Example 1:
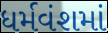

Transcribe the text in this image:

ધર્મવંશમાં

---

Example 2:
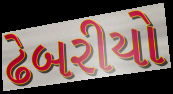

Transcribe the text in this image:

ઢેબરીયો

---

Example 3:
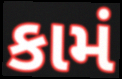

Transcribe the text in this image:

કામં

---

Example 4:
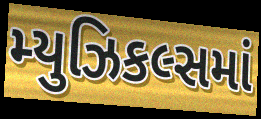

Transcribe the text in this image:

મ્યુઝિકલ્સમાં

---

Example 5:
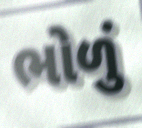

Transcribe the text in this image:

ભોળું